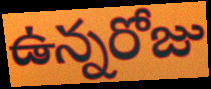
ఉన్నరోజు